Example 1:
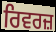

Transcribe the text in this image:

ਰਿਵਰਜ਼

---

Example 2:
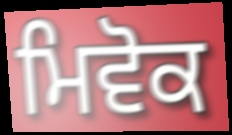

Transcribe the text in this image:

ਮਿਵੋਕ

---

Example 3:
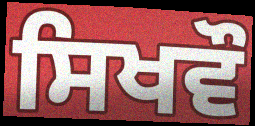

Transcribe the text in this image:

ਸਿਖਵੌ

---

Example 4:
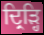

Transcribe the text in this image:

ਦ੍ਰਿੜ੍ਹਿ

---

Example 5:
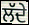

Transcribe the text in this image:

ਲੱਦੇ